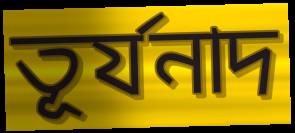
তূর্যনাদ